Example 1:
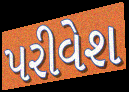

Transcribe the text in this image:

પરીવેશ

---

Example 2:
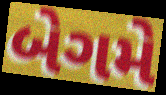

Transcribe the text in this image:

બેગમે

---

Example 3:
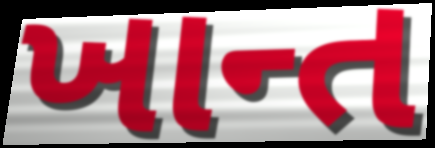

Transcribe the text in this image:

ખાન્ત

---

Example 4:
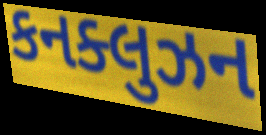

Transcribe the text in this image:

કનક્લુઝન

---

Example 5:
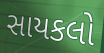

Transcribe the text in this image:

સાયકલો